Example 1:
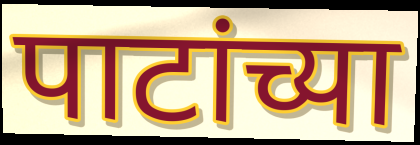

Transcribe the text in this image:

पाटांच्या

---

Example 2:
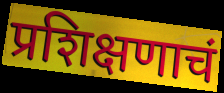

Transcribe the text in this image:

प्रशिक्षणाचं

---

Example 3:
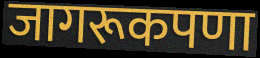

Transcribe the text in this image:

जागरूकपणा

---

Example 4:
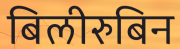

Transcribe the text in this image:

बिलीरुबिन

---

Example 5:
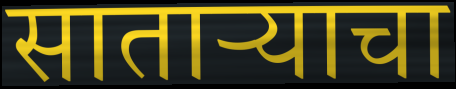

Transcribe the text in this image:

साताऱ्याचा